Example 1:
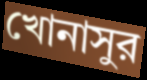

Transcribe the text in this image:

খোনাসুর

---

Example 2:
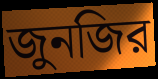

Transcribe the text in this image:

জুনজির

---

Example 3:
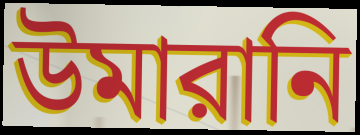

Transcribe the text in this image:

উমারানি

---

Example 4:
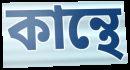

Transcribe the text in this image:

কান্থে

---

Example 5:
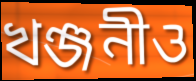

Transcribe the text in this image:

খঞ্জনীও